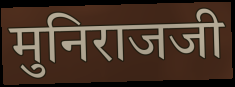
मुनिराजजी